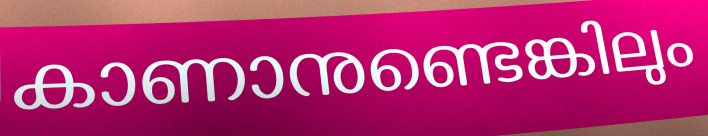
കാണാനുണ്ടെങ്കിലും